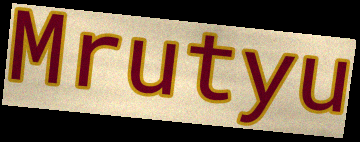
Mrutyu